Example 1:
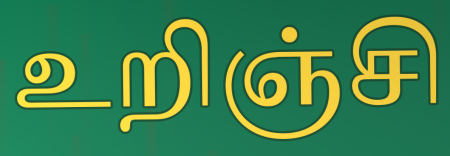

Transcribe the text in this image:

உறிஞ்சி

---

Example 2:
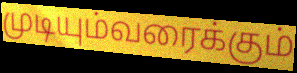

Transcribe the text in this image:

முடியும்வரைக்கும்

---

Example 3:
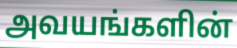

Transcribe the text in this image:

அவயங்களின்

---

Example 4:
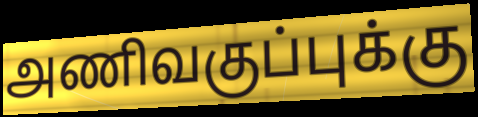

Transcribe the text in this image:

அணிவகுப்புக்கு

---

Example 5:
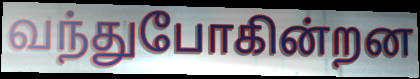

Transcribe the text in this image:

வந்துபோகின்றன